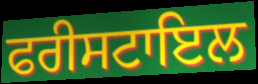
ਫਰੀਸਟਾਇਲ